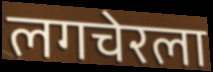
लगचेरला